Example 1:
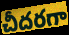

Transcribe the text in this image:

చీదరగా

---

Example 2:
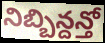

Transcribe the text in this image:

నిబ్బిన్దన్తో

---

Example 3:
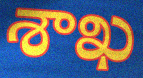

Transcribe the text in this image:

శాఖ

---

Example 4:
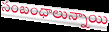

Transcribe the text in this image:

సంబంధాలున్నాయి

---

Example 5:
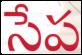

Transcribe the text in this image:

సేప